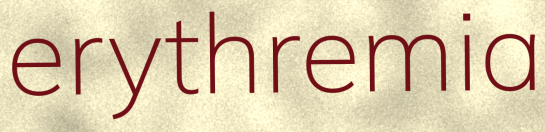
erythremia